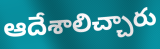
ఆదేశాలిచ్చారు